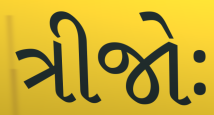
ત્રીજોઃ